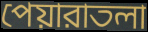
পেয়ারাতলা